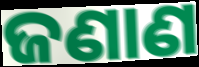
ଜଣାଣ